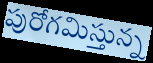
పురోగమిస్తున్న